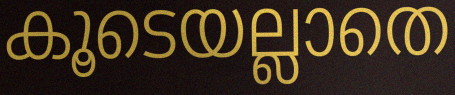
കൂടെയല്ലാതെ